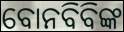
ବୋନବିବିଙ୍କ